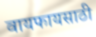
वायफायसाठी